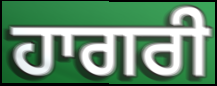
ਹਾਗਰੀ